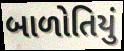
બાળોતિયું